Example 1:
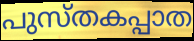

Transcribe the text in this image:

പുസ്തകപ്പാത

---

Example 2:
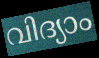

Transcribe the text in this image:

വിദ്യാം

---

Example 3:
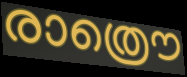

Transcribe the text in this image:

രാത്രൌ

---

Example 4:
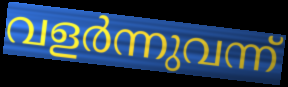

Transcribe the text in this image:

വളർന്നുവന്ന്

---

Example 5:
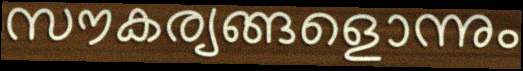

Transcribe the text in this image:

സൗകര്യങ്ങളൊന്നും